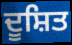
ਦੂਸ਼ਿਤ